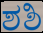
ಶಶಿ